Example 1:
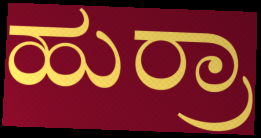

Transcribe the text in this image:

ಹುರ್ರಾ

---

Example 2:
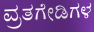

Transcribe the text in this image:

ವ್ರತಗೇಡಿಗಳ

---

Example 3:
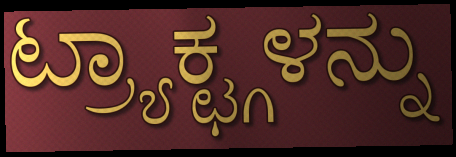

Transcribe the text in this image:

ಟ್ರ್ಯಾಕ್ಟ್ಗಳನ್ನು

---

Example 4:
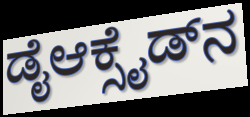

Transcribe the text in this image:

ಡೈಆಕ್ಸೈಡ್‌ನ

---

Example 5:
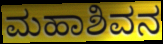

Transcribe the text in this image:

ಮಹಾಶಿವನ